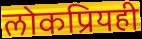
लोकप्रियही